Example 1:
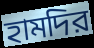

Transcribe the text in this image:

হামদির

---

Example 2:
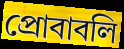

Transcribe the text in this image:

প্রোবাবলি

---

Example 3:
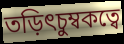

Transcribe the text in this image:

তড়িৎচুম্বকত্বে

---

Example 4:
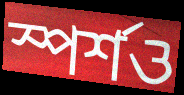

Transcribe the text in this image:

স্পর্শও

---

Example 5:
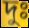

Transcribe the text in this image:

দুঃ